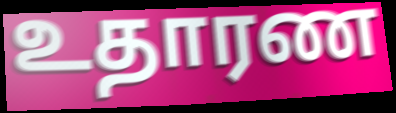
உதாரண